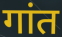
गांत